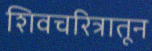
शिवचरित्रातून